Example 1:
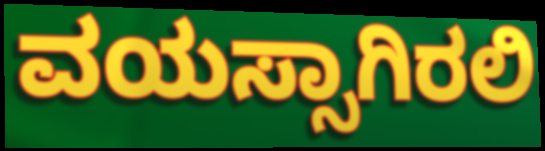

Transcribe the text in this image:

ವಯಸ್ಸಾಗಿರಲಿ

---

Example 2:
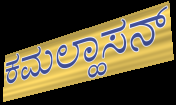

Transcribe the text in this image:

ಕಮಲ್ಹಾಸನ್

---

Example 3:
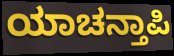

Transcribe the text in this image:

ಯಾಚನ್ತಾಪಿ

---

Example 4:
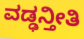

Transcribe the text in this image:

ವಡ್ಢನ್ತೀತಿ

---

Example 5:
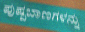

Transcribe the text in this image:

ಪುಷ್ಪಬಾಣಗಳನ್ನು